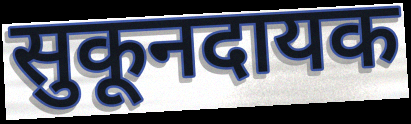
सुकूनदायक